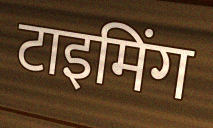
टाइमिंग